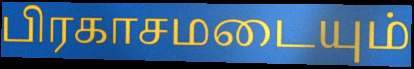
பிரகாசமடையும்